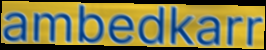
ambedkarr